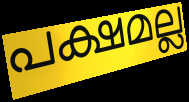
പക്ഷമല്ല